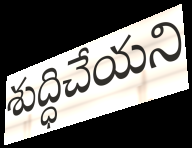
శుద్ధిచేయని